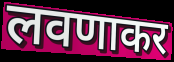
लवणाकर